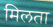
मिलता